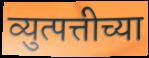
व्युत्पत्तीच्या